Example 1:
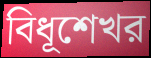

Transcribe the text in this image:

বিধূশেখর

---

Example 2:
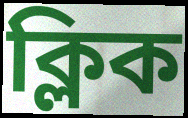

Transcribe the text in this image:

ক্লিক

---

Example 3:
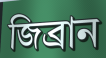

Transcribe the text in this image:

জিব্রান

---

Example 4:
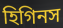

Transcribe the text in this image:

হিগিনস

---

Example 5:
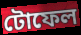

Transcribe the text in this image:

টোফেল